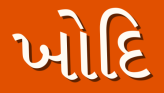
ખોદિ